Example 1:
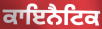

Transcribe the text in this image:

ਕਾਇਨੈਟਿਕ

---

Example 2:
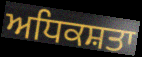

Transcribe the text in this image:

ਅਧਿਕਸ਼ਤਾ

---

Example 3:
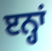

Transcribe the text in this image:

ੲਨ੍ਹਾਂ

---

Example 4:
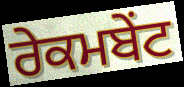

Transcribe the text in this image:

ਰੇਕਮਬੇਂਟ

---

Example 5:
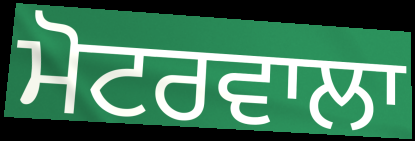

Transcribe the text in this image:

ਮੋਟਰਵਾਲਾ